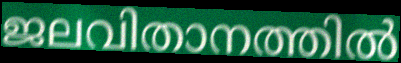
ജലവിതാനത്തിൽ